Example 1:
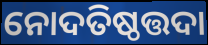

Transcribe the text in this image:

ନୋଦତିଷ୍ଠତ୍ତଦା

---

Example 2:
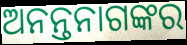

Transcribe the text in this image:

ଅନନ୍ତନାଗଙ୍କର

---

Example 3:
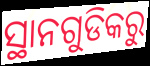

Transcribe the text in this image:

ସ୍ଥାନଗୁଡିକରୁ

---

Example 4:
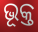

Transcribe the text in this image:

ଭୂକ୍ତ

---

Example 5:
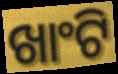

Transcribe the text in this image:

ଖାଂଟି